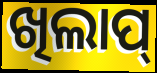
ଖିଲାପ୍